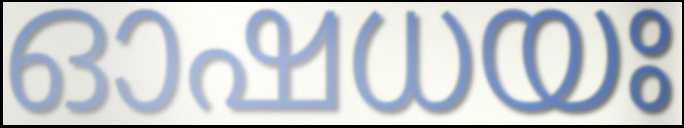
ഓഷധയഃ